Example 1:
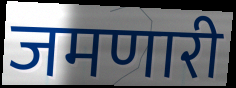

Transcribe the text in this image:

जमणारी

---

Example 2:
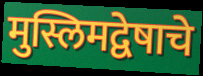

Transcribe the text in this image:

मुस्लिमद्वेषाचे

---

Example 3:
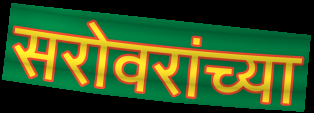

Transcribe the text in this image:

सरोवरांच्या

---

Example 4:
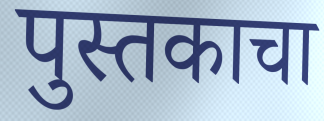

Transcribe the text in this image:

पुस्तकाचा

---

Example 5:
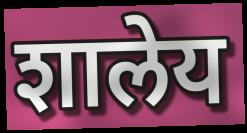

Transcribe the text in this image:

शालेय